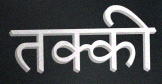
तक्की